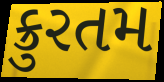
ક્રુરતમ